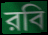
রবি